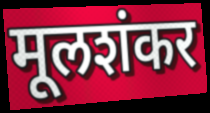
मूलशंकर